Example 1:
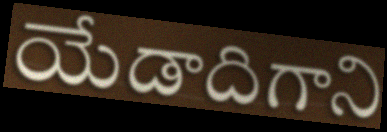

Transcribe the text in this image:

యేడాదిగాని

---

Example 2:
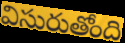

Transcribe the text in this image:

విసురుతోంది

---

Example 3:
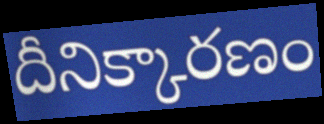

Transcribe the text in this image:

దీనిక్కారణం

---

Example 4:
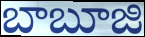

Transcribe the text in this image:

బాబూజి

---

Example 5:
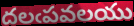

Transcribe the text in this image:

దలఁపవలయు